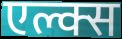
एल्क्स